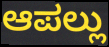
ಆಪಲ್ಲು